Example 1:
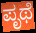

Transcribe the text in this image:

ಪೃಥೆ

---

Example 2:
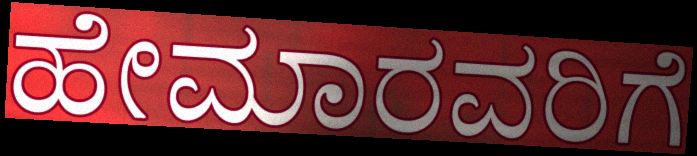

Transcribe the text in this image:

ಹೇಮಾರವರಿಗೆ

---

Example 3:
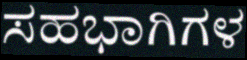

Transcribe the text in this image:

ಸಹಭಾಗಿಗಳ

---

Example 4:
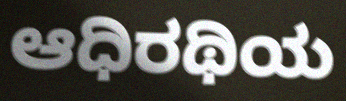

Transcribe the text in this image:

ಆಧಿರಥಿಯ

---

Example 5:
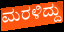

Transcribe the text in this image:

ಮರಳಿದ್ದು